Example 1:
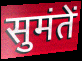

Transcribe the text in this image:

सुमंतें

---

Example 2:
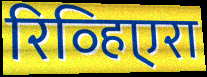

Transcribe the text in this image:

रिव्हिएरा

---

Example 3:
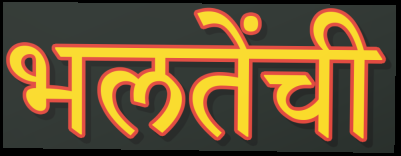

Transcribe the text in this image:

भलतेंची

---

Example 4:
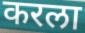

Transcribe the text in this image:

करला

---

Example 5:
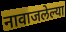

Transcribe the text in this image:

नावाजलेल्या